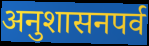
अनुशासनपर्व